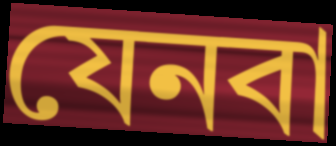
যেনবা